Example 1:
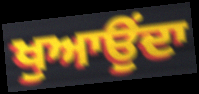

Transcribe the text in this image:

ਖੁਆਉਂਦਾ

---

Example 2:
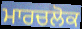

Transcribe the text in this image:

ਮਾਰਚਲੋਕ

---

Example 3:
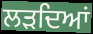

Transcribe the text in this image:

ਲੜਦਿਆਂ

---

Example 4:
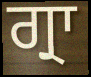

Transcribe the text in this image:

ਗ੍ਰਾ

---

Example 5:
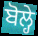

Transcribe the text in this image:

ਬੋਲ੍ਹੇ